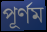
পূর্ণম